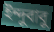
ইন্দুবাবু